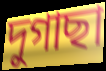
দুগাছা